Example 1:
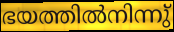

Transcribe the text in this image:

ഭയത്തിൽനിന്നു്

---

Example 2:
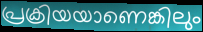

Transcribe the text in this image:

പ്രക്രിയയാണെങ്കിലും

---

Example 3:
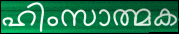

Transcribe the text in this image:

ഹിംസാത്മക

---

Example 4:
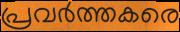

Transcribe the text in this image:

പ്രവർത്തകരെ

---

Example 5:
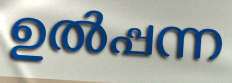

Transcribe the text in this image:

ഉൽപ്പന്ന